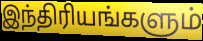
இந்திரியங்களும்